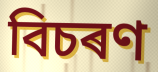
বিচৰণ